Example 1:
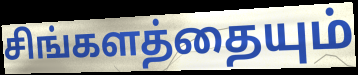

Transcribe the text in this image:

சிங்களத்தையும்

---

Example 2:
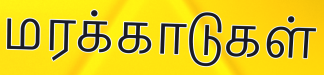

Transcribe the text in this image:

மரக்காடுகள்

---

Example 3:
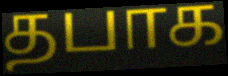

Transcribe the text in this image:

தபாக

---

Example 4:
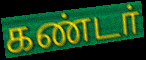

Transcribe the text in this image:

கண்டர்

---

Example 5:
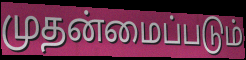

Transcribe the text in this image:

முதன்மைப்படும்